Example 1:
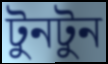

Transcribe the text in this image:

টুনটুন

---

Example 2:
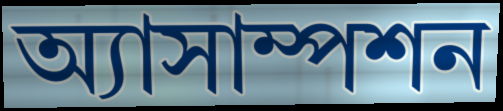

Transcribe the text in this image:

অ্যাসাম্পশন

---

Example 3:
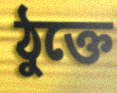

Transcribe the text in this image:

ঠুক্তে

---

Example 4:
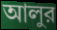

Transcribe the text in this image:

আলুর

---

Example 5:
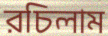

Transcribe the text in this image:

রচিলাম